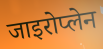
जाइरोप्लेन